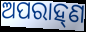
ଅପରାହ୍‍ଣ